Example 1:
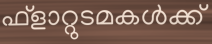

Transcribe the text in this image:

ഫ്ളാറ്റുടമകൾക്ക്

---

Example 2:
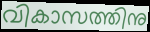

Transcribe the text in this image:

വികാസത്തിനു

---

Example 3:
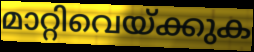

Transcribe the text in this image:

മാറ്റിവെയ്ക്കുക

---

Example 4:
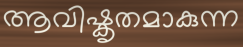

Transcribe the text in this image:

ആവിഷ്കൃതമാകുന്ന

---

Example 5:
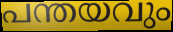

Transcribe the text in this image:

പന്തയവും